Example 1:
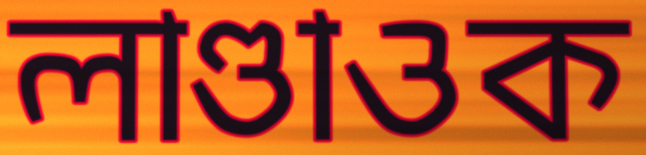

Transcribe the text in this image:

লাণ্ডাওক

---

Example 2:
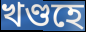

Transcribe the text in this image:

খণ্ডহে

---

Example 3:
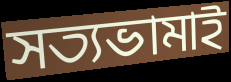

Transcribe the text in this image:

সত্যভামাই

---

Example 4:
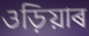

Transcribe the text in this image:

ওড়িয়াৰ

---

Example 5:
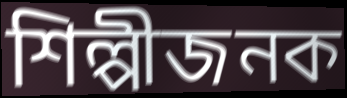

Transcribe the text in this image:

শিল্পীজনক